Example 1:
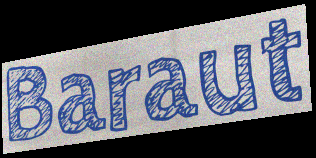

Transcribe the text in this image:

Baraut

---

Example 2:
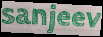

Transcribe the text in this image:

sanjeev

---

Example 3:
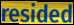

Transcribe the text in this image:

resided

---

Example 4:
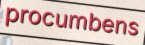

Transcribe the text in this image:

procumbens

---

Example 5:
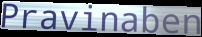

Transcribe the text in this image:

Pravinaben